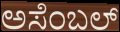
ಅಸೆಂಬಲ್